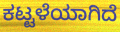
ಕಟ್ಟಳೆಯಾಗಿದೆ